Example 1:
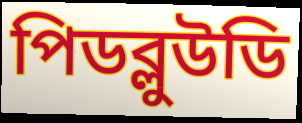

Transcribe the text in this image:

পিডব্লুউডি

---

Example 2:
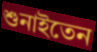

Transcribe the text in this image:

শুনাইতেন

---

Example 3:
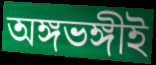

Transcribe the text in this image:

অঙ্গভঙ্গীই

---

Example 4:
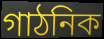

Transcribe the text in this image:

গাঠনিক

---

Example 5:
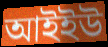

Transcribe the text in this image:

আইইউ